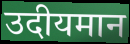
उदीयमान